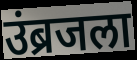
उंब्रजला